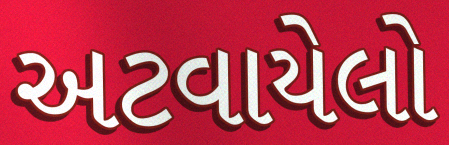
અટવાયેલો